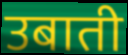
उबाती